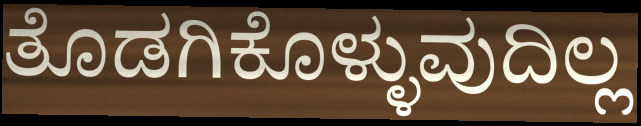
ತೊಡಗಿಕೊಳ್ಳುವುದಿಲ್ಲ